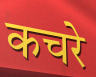
कचरे